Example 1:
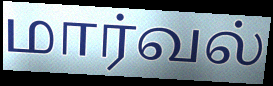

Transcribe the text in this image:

மார்வல்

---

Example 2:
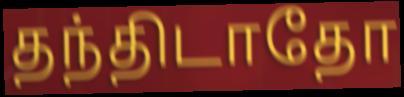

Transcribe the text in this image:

தந்திடாதோ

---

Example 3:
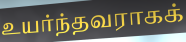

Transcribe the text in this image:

உயர்ந்தவராகக்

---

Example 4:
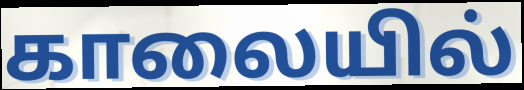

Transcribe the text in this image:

காலையில்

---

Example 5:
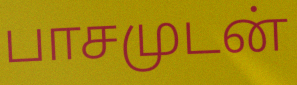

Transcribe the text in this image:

பாசமுடன்